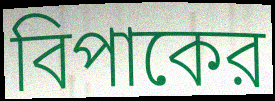
বিপাকের